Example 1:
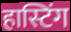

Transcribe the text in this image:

हास्टिंग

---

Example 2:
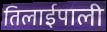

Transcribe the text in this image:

तिलाईपाली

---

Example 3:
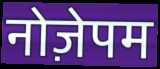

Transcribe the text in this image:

नोज़ेपम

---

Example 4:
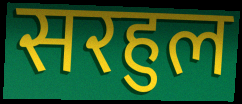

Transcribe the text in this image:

सरहुल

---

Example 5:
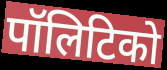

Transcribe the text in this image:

पॉलिटिको